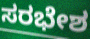
ಸರಭೇಶ